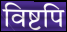
विष्टपि